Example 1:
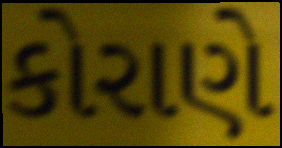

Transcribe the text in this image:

કોરાણે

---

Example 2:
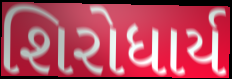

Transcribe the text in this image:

શિરોધાર્ય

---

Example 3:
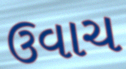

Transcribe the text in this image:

ઉવાચ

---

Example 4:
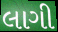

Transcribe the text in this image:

લાગી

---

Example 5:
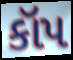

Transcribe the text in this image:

કૉપ